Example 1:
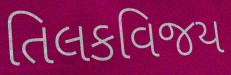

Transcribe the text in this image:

તિલકવિજય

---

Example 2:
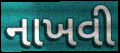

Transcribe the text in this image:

નાખવી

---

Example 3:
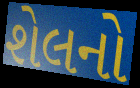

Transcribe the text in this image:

શેલનો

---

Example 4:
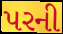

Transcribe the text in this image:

પરની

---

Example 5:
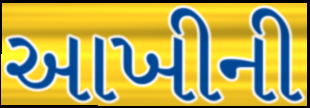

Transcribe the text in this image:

આખીની